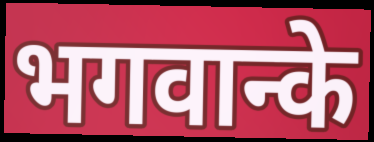
भगवान्के